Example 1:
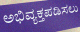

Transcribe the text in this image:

ಅಭಿವ್ಯಕ್ತಪಡಿಸಲು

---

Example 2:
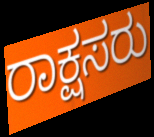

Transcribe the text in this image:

ರಾಕ್ಷಸರು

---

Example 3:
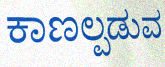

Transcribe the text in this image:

ಕಾಣಲ್ಪಡುವ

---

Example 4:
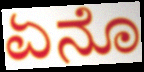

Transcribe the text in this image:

ಏನೊ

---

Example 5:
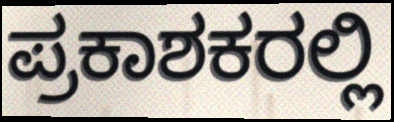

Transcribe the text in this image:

ಪ್ರಕಾಶಕರಲ್ಲಿ